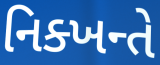
નિક્ખન્તે